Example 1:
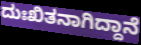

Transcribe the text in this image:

ದುಃಖಿತನಾಗಿದ್ದಾನೆ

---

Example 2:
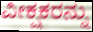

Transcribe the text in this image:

ವೀಕ್ಷಕರನ್ನು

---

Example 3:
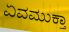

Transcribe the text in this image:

ಏವಮುಕ್ತಾ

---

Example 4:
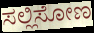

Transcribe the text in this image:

ಸಲ್ಲಿಸೋಣ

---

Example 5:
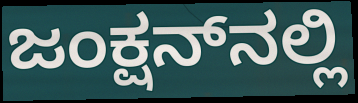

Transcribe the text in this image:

ಜಂಕ್ಷನ್‌ನಲ್ಲಿ